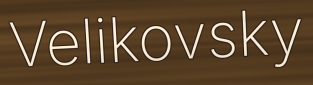
Velikovsky